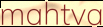
mahtva